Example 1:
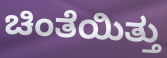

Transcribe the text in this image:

ಚಿಂತೆಯಿತ್ತು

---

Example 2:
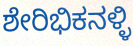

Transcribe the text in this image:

ಶೇರಿಭಿಕನಳ್ಳಿ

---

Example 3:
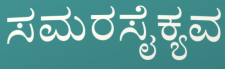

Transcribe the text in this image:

ಸಮರಸೈಕ್ಯವ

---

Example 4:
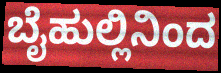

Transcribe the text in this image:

ಬೈಹುಲ್ಲಿನಿಂದ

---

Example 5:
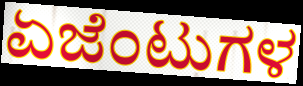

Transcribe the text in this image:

ಏಜೆಂಟುಗಳ